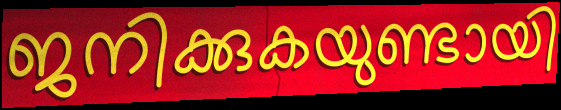
ജനിക്കുകയുണ്ടായി